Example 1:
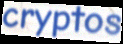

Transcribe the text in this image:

cryptos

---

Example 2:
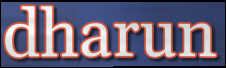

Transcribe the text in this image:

dharun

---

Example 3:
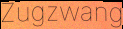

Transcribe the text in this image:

Zugzwang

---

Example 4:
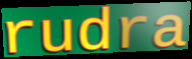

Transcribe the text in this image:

rudra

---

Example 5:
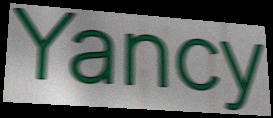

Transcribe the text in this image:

Yancy